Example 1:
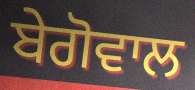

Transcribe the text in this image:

ਬੇਗੋਵਾਲ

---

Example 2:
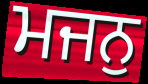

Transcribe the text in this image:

ਮਜਨੁ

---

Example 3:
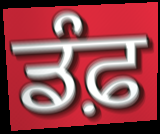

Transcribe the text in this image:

ਡੰਫ਼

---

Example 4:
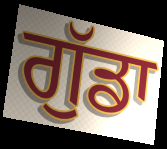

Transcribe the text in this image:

ਗੁੱਡਾ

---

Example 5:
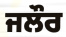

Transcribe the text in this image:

ਜਲੌਰ